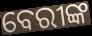
ବେରୀଙ୍କ